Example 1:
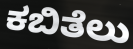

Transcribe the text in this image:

ಕಬಿತೆಲು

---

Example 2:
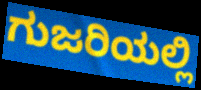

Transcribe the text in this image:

ಗುಜರಿಯಲ್ಲಿ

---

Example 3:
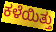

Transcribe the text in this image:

ಕಳೆಯಿತ್ತು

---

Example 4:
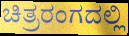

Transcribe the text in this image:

ಚಿತ್ರರಂಗದಲ್ಲಿ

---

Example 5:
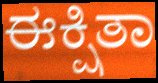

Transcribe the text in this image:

ಈಕ್ಷಿತಾ